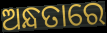
ଅନ୍ଧତାରେ